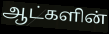
ஆட்களின்